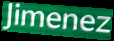
Jimenez